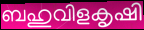
ബഹുവിളകൃഷി